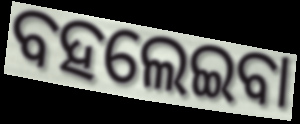
ବହଲେଇବା